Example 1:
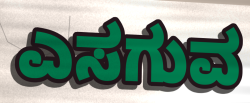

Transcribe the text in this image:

ಎಸಗುವ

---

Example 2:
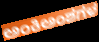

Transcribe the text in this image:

ಅಂಕಿಅಂಶಗಳ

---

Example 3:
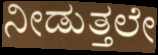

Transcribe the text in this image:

ನೀಡುತ್ತಲೇ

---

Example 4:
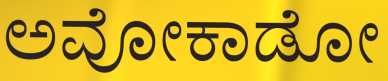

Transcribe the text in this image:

ಅವೋಕಾಡೋ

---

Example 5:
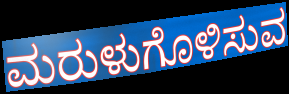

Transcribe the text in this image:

ಮರುಳುಗೊಳಿಸುವ